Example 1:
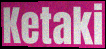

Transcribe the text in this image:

Ketaki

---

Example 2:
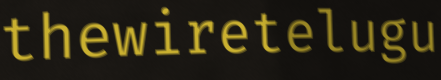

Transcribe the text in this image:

thewiretelugu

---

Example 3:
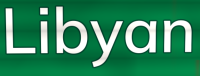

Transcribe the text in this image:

Libyan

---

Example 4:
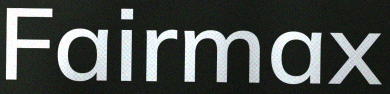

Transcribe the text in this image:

Fairmax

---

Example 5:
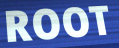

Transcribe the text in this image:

ROOT